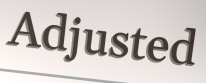
Adjusted